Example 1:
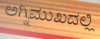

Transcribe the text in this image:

ಅಗ್ನಿಮುಖದಲ್ಲಿ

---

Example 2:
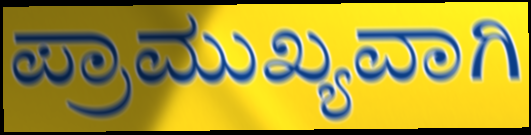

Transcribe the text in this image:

ಪ್ರಾಮುಖ್ಯವಾಗಿ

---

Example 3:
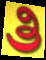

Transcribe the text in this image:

ತಿ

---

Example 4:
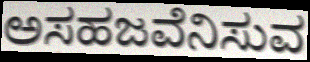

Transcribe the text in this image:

ಅಸಹಜವೆನಿಸುವ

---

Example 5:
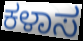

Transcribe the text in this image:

ಕಳಾಸ